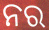
ନର